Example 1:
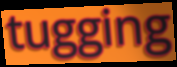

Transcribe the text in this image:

tugging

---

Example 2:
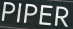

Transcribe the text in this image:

PIPER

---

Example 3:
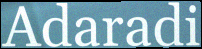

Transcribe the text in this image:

Adaradi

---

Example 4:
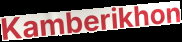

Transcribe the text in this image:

Kamberikhon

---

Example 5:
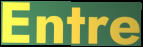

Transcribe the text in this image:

Entre